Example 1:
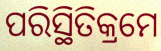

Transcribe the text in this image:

ପରିସ୍ଥିତିକ୍ରମେ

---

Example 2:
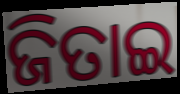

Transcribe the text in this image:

ଜିତାଇ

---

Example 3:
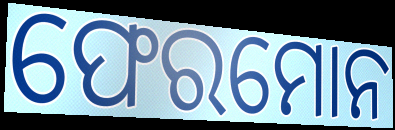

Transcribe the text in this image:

ଫେରମୋନ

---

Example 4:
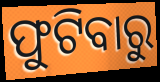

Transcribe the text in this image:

ଫୁଟିବାରୁ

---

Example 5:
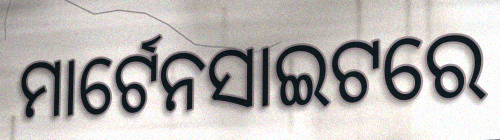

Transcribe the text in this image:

ମାର୍ଟେନସାଇଟରେ